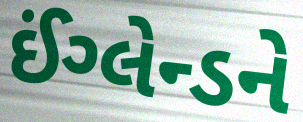
ઈંગ્લેન્ડને